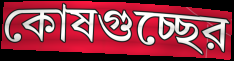
কোষগুচ্ছের